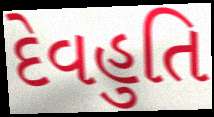
દેવહુતિ